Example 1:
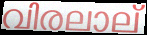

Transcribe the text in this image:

വിരലാല്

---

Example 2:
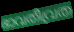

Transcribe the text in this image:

ഭാവതീവ്രത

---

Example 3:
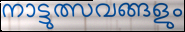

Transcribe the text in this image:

നാട്ടുത്സവങ്ങളും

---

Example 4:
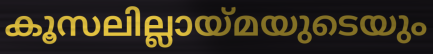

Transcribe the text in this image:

കൂസലില്ലായ്മയുടെയും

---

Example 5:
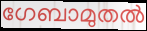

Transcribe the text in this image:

ഗേബാമുതൽ